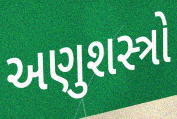
અણુશસ્ત્રો